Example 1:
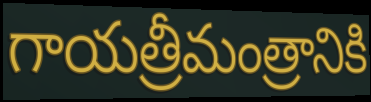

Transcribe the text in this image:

గాయత్రీమంత్రానికి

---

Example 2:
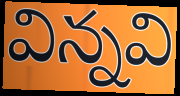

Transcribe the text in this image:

విన్నవి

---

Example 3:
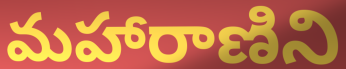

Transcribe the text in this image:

మహారాణిని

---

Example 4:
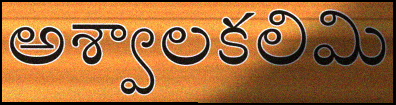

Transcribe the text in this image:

అశ్వాలకలిమి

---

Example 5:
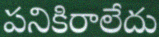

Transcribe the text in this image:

పనికిరాలేదు